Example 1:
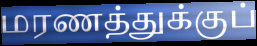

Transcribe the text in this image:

மரணத்துக்குப்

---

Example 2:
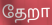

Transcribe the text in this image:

தேறா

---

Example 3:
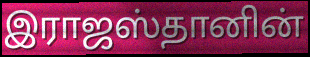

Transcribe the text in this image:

இராஜஸ்தானின்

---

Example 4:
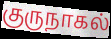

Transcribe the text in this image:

குருநாகல்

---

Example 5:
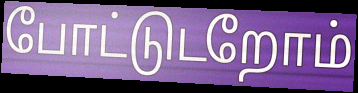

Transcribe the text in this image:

போட்டுடறோம்